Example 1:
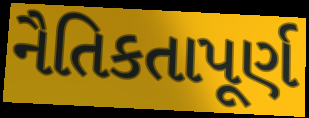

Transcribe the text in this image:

નૈતિકતાપૂર્ણ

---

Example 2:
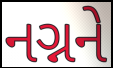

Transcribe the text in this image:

નગ્નને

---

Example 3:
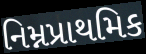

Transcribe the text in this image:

નિમ્નપ્રાથમિક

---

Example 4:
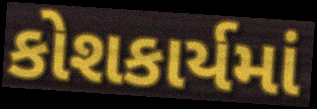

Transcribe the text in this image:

કોશકાર્યમાં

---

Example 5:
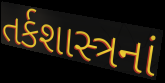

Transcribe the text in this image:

તર્કશાસ્ત્રનાં